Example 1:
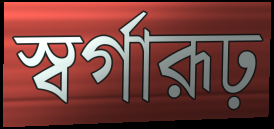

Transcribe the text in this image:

স্বর্গারূঢ়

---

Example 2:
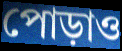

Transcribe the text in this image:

পোড়াও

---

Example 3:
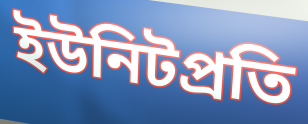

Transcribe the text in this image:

ইউনিটপ্রতি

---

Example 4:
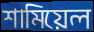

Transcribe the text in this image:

শামিয়েল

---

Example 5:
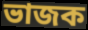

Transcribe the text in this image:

ভাজক